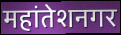
महांतेशनगर